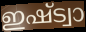
ഇഷ്ട്വാ